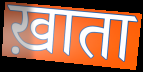
ख़ाता